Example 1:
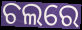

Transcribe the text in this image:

ଚଲରେ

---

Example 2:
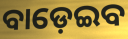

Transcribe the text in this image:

ବାଡ଼େଇବ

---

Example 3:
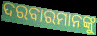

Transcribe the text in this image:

ଦରବାରମାନଙ୍କୁ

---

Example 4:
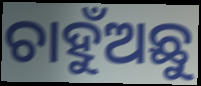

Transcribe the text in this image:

ଚାହୁଁଅଛୁ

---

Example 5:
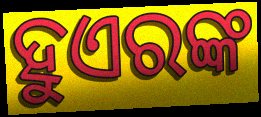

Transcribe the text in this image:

ହୁଏରଙ୍କ